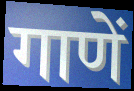
गाणें